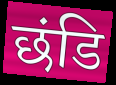
छंडि